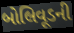
બોલિવૂડની